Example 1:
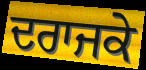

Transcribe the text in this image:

ਦਰਾਜਕੇ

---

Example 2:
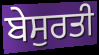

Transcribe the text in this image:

ਬੇਸੁਰਤੀ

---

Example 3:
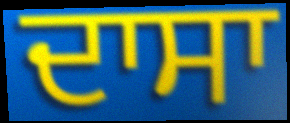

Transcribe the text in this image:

ਦਾਸਾ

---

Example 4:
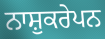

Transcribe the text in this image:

ਨਾਸ਼ੁਕਰੇਪਨ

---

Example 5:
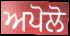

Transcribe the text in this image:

ਅਪੋਲੋ